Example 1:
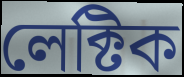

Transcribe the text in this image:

লেক্টিক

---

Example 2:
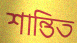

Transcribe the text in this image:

শান্তিত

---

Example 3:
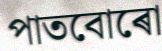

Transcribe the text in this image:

পাতবোৰো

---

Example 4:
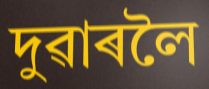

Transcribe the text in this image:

দুৱাৰলৈ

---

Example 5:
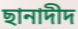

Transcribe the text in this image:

ছানাদীদ